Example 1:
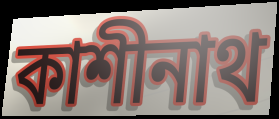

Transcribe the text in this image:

কাশীনাথ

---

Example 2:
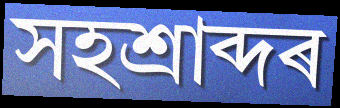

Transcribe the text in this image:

সহশ্ৰাব্দৰ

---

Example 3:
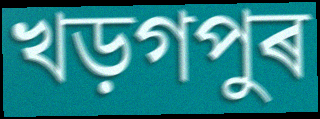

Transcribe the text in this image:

খড়গপুৰ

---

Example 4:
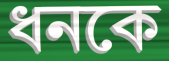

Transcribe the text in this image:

ধনকে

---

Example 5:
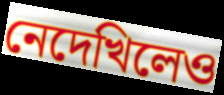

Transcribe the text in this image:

নেদেখিলেও